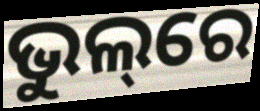
ଭୁଲ୍‌ରେ